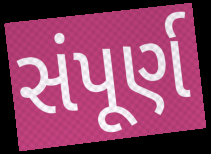
સંપૂર્ણ